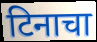
टिनाचा